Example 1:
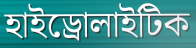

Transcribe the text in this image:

হাইড্রোলাইটিক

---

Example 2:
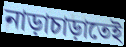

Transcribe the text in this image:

নাড়াচাড়াতেই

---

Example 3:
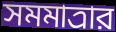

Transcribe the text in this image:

সমমাত্রার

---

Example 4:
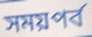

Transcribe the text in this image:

সময়পর্ব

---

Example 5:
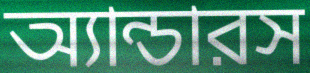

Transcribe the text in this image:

অ্যান্ডারস